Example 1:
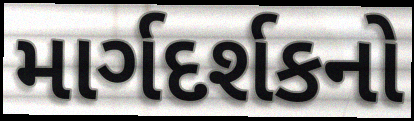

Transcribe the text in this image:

માર્ગદર્શકનો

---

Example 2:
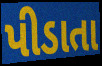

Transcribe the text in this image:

પીડાતા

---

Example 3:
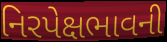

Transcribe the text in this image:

નિરપેક્ષભાવની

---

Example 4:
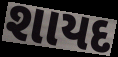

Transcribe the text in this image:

શાયદ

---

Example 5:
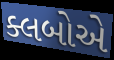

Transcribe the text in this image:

ક્લબોએ